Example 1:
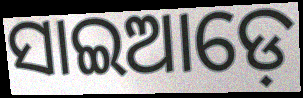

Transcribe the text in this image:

ସାଇଆଡ଼େ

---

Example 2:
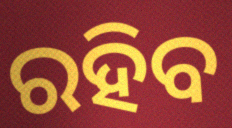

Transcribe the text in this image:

ରହିବ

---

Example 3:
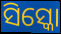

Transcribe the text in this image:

ସିସ୍କୋ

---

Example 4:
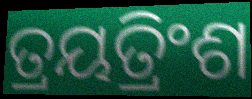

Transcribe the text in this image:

ତ୍ରୟତ୍ରିଂଶ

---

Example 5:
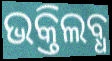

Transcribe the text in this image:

ଭକ୍ତିଲବ୍ଧ